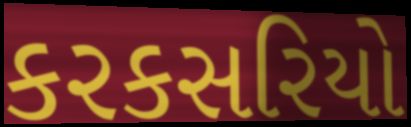
કરકસરિયો